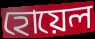
হোয়েল